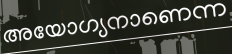
അയോഗ്യനാണെന്ന